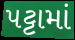
પટ્ટામાં